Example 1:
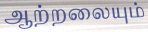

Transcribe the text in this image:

ஆற்றலையும்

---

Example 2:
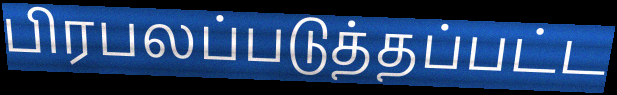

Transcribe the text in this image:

பிரபலப்படுத்தப்பட்ட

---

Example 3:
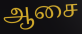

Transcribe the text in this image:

ஆசை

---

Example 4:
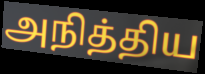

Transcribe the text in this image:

அநித்திய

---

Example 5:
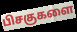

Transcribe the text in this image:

பிசகுகளை